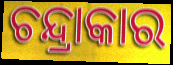
ଚନ୍ଦ୍ରାକାର